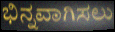
ಭಿನ್ನವಾಗಿಸಲು